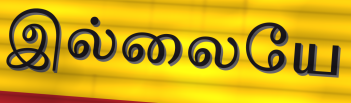
இல்லையே